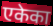
एकेका